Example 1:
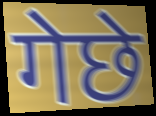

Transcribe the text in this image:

गेछे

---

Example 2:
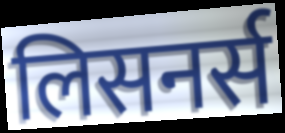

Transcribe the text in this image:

लिसनर्स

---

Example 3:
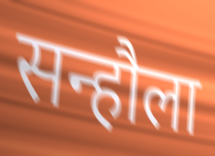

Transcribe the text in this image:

सन्हौला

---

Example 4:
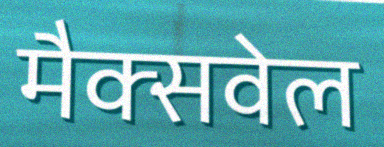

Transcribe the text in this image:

मैक्‍सवेल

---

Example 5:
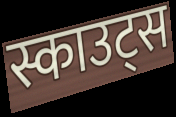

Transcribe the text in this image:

स्काउट्स